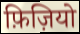
फ़िज़ियो